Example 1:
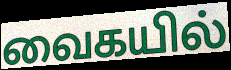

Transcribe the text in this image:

வைகயில்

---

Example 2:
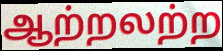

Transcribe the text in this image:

ஆற்றலற்ற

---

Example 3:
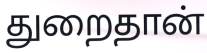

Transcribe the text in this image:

துறைதான்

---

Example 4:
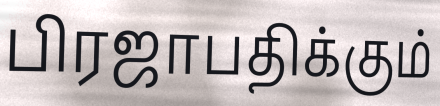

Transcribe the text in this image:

பிரஜாபதிக்கும்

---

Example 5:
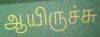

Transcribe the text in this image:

ஆயிருச்சு